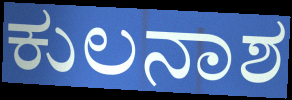
ಕುಲನಾಶ